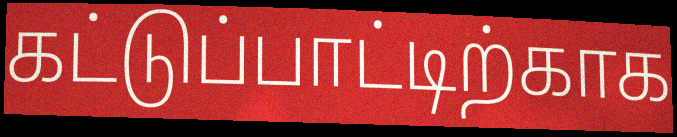
கட்டுப்பாட்டிற்காக